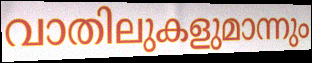
വാതിലുകളുമാന്നും